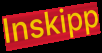
Inskipp